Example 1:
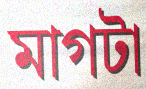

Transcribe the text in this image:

মাগটা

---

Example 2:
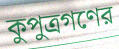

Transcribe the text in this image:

কুপুত্রগণের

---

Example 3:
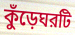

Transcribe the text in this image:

কুঁড়েঘরটি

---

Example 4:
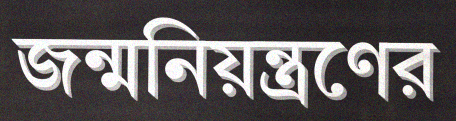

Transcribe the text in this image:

জন্মনিয়ন্ত্রণের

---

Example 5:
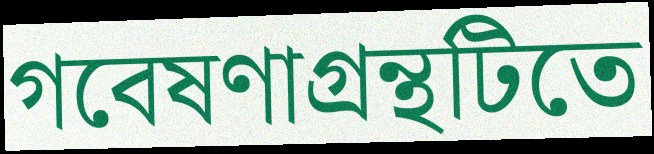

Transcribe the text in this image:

গবেষণাগ্রন্থটিতে